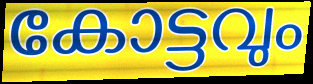
കോട്ടവും